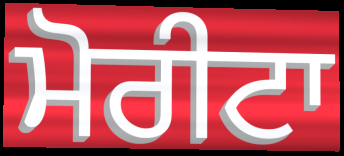
ਮੋਰੀਟਾ